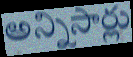
అన్నిసార్లు